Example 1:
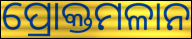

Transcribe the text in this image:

ପ୍ରୋକ୍ତମଳାନ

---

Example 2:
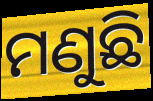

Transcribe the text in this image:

ମଣୁଛି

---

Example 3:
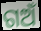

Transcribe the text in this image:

ଗଅଁ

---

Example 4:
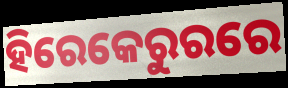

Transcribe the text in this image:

ହିରେକେରୁରରେ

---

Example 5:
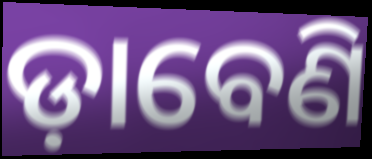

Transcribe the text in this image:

ଡ଼ାବେଣି